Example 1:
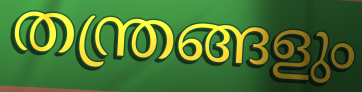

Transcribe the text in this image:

തന്ത്രങ്ങളും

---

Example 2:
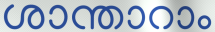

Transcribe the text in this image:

ശാന്താറാം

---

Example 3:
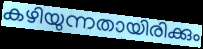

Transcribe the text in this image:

കഴിയുന്നതായിരിക്കും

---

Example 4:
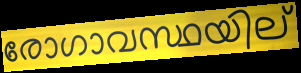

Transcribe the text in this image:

രോഗാവസ്ഥയില്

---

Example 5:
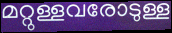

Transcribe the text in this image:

മറ്റുള്ളവരോടുള്ള